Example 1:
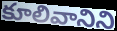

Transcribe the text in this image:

కూలివానిని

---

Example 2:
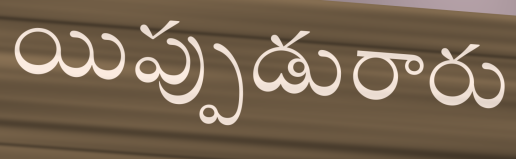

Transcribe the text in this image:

యిప్పుడురారు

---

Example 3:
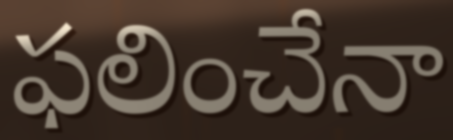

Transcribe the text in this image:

ఫలించేనా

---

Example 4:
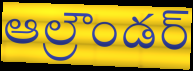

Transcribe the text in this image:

ఆల్రౌండర్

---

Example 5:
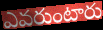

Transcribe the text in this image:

ఎవరుంటారు